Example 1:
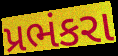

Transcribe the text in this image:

પ્રભંકરા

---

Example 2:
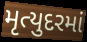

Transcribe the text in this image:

મૃત્યુદરમાં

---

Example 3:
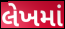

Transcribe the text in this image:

લેખમાં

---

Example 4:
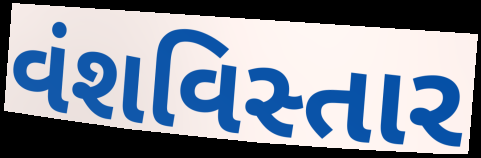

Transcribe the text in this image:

વંશવિસ્તાર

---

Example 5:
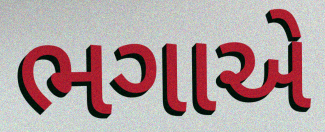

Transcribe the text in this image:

ભગાએ